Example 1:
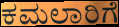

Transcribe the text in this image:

ಕಮಲಾರಿಗೆ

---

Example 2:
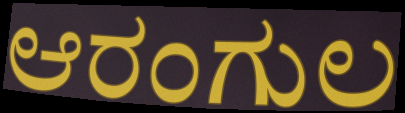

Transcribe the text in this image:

ಆರಂಗುಲ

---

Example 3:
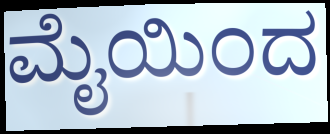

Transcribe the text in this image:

ಮೈಯಿಂದ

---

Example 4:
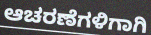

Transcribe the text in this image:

ಆಚರಣೆಗಳಿಗಾಗಿ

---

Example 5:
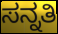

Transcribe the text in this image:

ಸನ್ನತಿ